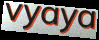
vyaya